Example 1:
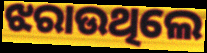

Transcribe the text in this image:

ଝରାଉଥିଲେ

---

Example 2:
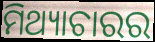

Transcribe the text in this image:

ମିଥ୍ୟାଚାରର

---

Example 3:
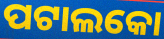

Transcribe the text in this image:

ପଟାଲକୋ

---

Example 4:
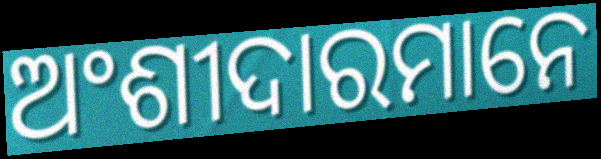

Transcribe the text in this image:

ଅଂଶୀଦାରମାନେ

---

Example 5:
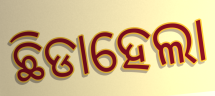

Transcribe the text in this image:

ଛିଡାହେଲା